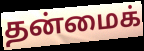
தன்மைக்